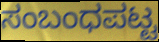
ಸಂಬಂಧಪಟ್ಟ